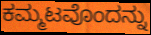
ಕಮ್ಮಟವೊಂದನ್ನು